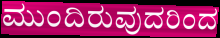
ಮುಂದಿರುವುದರಿಂದ